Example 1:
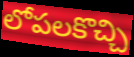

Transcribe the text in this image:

లోపలకొచ్చి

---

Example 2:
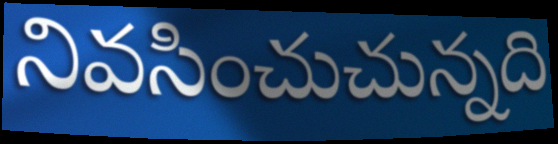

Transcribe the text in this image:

నివసించుచున్నది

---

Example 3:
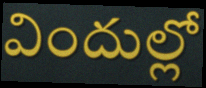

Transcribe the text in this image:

విందుల్లో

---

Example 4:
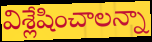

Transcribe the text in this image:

విశ్లేషించాలన్నా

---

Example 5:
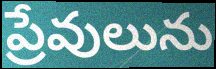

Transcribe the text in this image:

ప్రేవులును